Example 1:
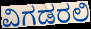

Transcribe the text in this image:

ವಿಗಡರಲಿ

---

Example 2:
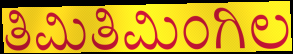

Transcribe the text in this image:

ತಿಮಿತಿಮಿಂಗಿಲ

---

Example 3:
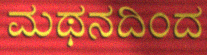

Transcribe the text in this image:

ಮಥನದಿಂದ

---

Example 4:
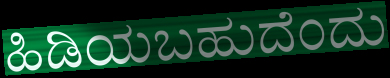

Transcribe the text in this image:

ಹಿಡಿಯಬಹುದೆಂದು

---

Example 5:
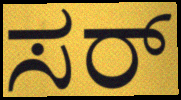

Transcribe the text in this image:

ಸರ್